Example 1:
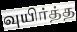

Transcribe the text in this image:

வுயிர்த்த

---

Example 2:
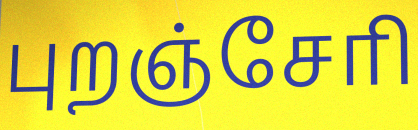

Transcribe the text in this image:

புறஞ்சேரி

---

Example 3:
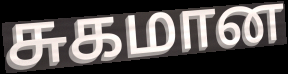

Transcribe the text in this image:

சுகமான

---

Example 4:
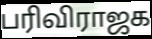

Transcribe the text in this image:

பரிவிராஜக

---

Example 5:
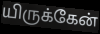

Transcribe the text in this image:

யிருக்கேன்